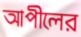
আপীলের